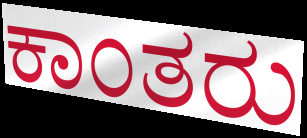
ಕಾಂತರು